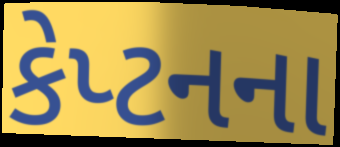
કેપ્ટનના